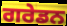
ਗਰੇਡਨ